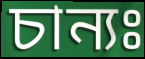
চান্যঃ